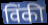
विंकी